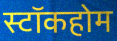
स्टॉकहोम